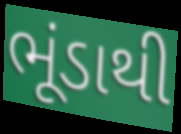
ભૂંડાથી